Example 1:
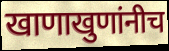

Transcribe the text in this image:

खाणाखुणांनीच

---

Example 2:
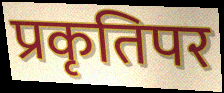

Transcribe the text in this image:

प्रकृतिपर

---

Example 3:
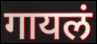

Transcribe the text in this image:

गायलं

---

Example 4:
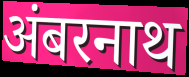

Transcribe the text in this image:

अंबरनाथ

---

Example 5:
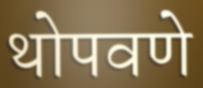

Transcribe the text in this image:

थोपवणे